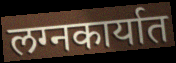
लग्नकार्यात